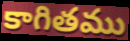
కాగితము